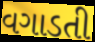
વગાડતી